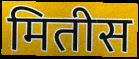
मितीस